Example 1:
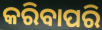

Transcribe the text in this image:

କରିବାପରି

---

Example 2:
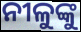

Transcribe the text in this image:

ନୀଳୁଙ୍କୁ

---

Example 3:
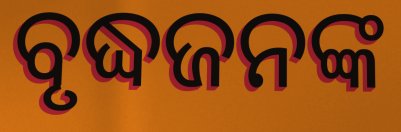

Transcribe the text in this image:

ବୃଦ୍ଧଜନଙ୍କ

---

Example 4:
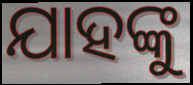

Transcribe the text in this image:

ଯାହଙ୍କୁ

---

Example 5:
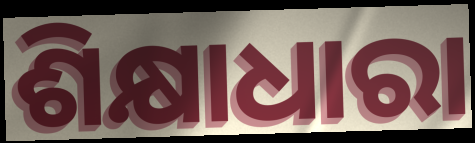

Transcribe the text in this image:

ଶିକ୍ଷାଧାରା